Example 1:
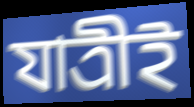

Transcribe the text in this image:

যাত্রীই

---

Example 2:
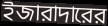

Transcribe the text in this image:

ইজারাদারের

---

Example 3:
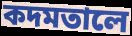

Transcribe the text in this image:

কদমতালে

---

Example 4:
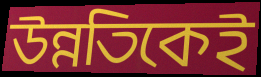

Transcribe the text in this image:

উন্নতিকেই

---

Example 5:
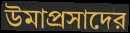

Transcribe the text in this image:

উমাপ্রসাদের